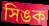
সিঙক